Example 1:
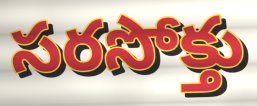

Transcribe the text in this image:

సరసోక్తు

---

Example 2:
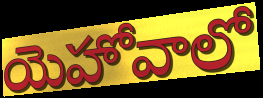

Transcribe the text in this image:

యెహోవాలో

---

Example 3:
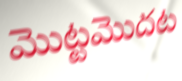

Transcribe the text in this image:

మొట్టమొదట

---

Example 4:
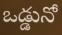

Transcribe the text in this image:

ఒడ్డునో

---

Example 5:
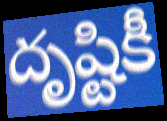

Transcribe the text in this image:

దృష్టికీ